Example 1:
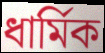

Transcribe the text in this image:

ধার্মিক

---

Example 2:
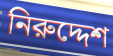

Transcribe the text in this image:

নিরুদ্দেশ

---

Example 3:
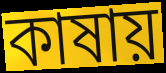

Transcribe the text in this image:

কাষায়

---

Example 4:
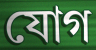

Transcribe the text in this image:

যোগ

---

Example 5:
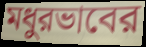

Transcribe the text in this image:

মধুরভাবের